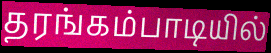
தரங்கம்பாடியில்